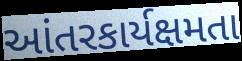
આંતરકાર્યક્ષમતા